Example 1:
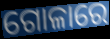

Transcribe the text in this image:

ଗୋଳାରେ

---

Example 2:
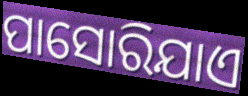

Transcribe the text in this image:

ପାସୋରିଯାଏ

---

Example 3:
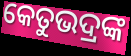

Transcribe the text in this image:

କେତୁଭଦ୍ରଙ୍କ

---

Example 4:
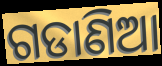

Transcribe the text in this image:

ଗଡାଣିଆ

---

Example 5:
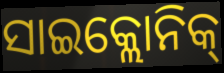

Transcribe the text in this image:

ସାଇକ୍ଲୋନିକ୍